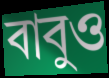
বাবুও